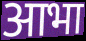
आभा